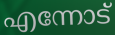
എന്നോട്